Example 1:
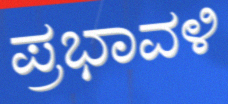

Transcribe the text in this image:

ಪ್ರಭಾವಳಿ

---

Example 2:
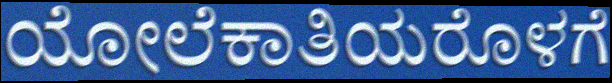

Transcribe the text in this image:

ಯೋಲೆಕಾತಿಯರೊಳಗೆ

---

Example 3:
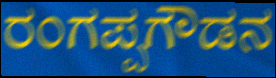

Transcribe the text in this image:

ರಂಗಪ್ಪಗೌಡನ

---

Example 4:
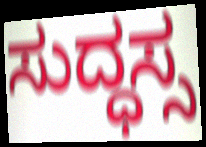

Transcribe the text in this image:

ಸುದ್ಧಸ್ಸ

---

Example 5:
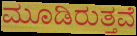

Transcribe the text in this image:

ಮೂಡಿರುತ್ತವೆ